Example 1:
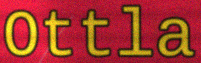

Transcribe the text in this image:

Ottla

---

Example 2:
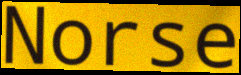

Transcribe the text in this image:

Norse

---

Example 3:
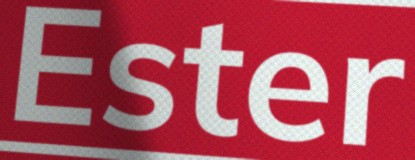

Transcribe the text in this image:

Ester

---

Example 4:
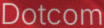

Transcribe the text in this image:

Dotcom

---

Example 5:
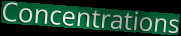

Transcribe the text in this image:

Concentrations